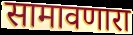
सामावणारा